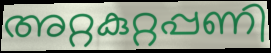
അറ്റകുറ്റപ്പണി